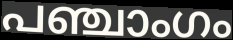
പഞ്ചാംഗം